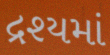
દ્રશ્યમાં